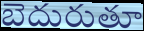
బెదురుతూ